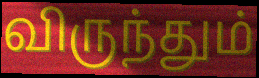
விருந்தும்